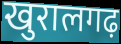
खुरालगढ़